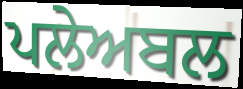
ਪਲੇਅਬਲ